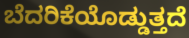
ಬೆದರಿಕೆಯೊಡ್ಡುತ್ತದೆ